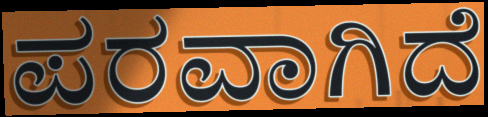
ಪರವಾಗಿದೆ